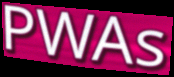
PWAs